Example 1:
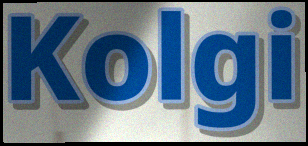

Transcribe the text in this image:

Kolgi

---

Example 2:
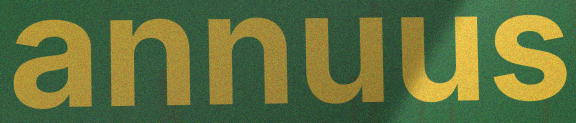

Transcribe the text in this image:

annuus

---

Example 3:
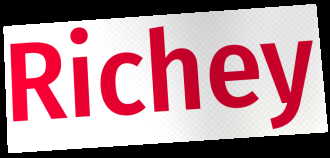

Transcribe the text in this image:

Richey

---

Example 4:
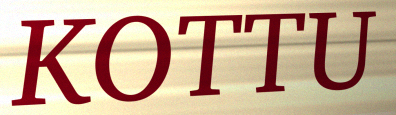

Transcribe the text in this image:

KOTTU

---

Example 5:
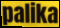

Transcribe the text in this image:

palika